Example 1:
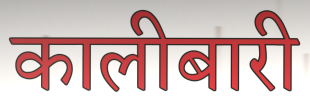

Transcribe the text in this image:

कालीबारी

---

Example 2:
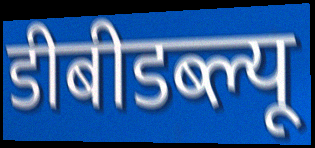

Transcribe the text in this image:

डीबीडब्ल्यू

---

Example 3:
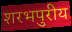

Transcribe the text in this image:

शरभपुरीय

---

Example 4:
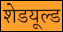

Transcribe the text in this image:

शेडयूल्ड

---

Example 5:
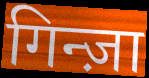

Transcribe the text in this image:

गिन्ज़ा